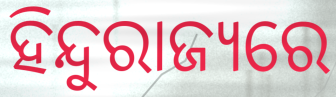
ହିନ୍ଦୁରାଜ୍ୟରେ